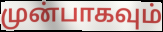
முன்பாகவும்